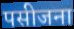
पसीजना